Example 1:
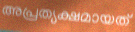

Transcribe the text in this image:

അപ്രത്യക്ഷമായത്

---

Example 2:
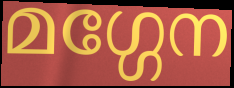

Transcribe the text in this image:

മഗ്ഗേന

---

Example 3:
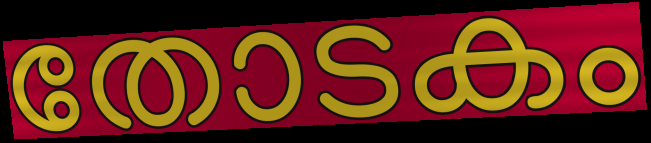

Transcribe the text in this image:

തോടകം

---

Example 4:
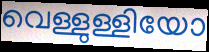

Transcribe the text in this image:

വെള്ളുള്ളിയോ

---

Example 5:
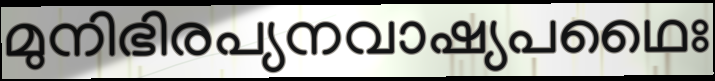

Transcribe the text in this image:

മുനിഭിരപ്യനവാഷ്യപഥൈഃ